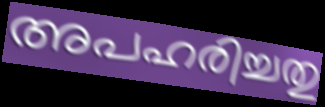
അപഹരിച്ചതു